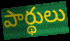
పార్థులు